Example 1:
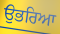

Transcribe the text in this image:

ਉਭਰਿਆ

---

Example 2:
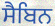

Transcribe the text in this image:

ਸੈਬਿਨ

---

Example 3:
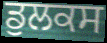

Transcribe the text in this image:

ਡੁਲਕਸ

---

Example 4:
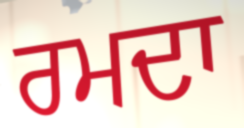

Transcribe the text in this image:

ਰਮਦਾ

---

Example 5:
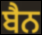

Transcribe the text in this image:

ਬੈਨ